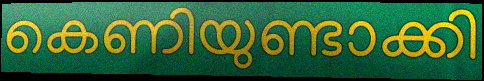
കെണിയുണ്ടാക്കി